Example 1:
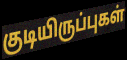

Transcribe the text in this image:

குடியிருப்புகள்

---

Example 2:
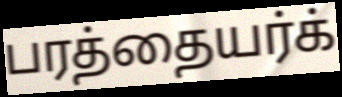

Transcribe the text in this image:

பரத்தையர்க்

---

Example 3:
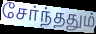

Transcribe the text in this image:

சேர்ந்ததும்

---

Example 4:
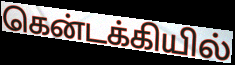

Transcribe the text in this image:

கென்டக்கியில்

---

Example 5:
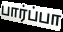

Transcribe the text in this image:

பார்ப்பா